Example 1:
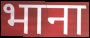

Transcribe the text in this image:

भाना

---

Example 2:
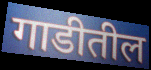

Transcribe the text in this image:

गाडीतील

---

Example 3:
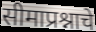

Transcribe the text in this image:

सीमाप्रश्नाचे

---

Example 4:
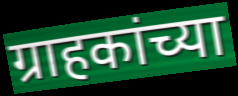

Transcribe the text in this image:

ग्राहकांच्या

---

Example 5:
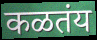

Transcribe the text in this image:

कळतंय